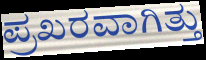
ಪ್ರಖರವಾಗಿತ್ತು